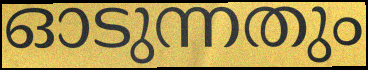
ഓടുന്നതും